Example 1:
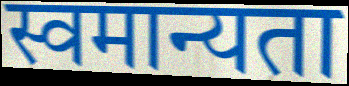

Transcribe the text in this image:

स्वमान्यता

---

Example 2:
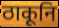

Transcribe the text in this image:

ठाकूनि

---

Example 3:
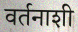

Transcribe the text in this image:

वर्तनाशी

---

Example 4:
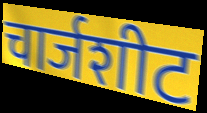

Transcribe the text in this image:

चार्जशीट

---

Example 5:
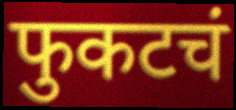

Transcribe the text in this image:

फुकटचं